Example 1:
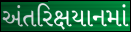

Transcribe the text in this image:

અંતરિક્ષયાનમાં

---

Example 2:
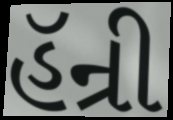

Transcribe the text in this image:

હૅન્રી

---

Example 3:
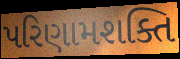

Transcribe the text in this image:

પરિણામશક્તિ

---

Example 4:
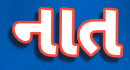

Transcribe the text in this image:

નાત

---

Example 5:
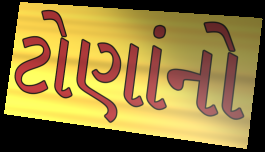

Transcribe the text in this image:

ટોણાંનો